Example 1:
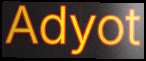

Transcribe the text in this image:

Adyot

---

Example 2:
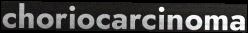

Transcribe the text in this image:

choriocarcinoma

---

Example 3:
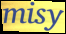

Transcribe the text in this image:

misy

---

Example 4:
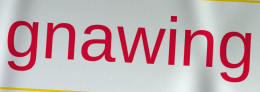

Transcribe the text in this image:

gnawing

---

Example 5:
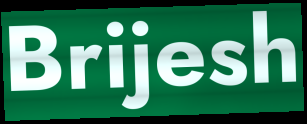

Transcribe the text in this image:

Brijesh